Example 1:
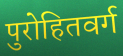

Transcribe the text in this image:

पुरोहितवर्ग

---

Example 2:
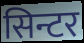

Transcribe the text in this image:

सिन्टर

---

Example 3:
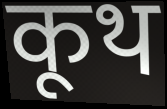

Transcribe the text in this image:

कूथ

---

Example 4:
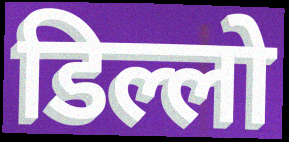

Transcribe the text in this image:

डिल्लो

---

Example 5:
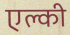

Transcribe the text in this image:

एल्की